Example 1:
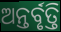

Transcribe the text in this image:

ଅନ୍ତର୍ବୃତ୍ତି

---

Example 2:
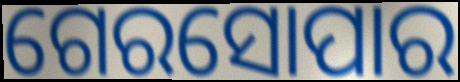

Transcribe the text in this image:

ଗେରସୋପାର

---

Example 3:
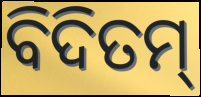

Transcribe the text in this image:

ବିଦିତମ୍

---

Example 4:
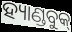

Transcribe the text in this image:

ହ୍ୟାଣ୍ଡବୁକ୍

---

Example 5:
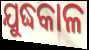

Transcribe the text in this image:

ଯୁଦ୍ଧକାଳ